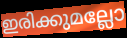
ഇരിക്കുമല്ലോ